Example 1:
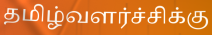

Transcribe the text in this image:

தமிழ்வளர்ச்சிக்கு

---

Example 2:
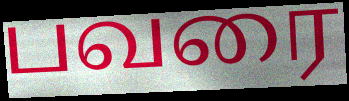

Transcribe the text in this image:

பவரை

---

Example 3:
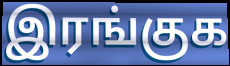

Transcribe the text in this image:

இரங்குக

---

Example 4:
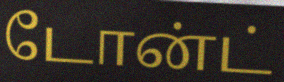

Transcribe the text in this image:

டோன்ட்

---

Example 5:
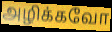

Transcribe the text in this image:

அழிக்கவோ